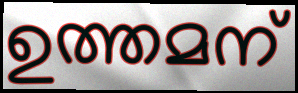
ഉത്തമന്